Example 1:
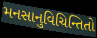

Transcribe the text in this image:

મનસાનુવિચિન્તિતો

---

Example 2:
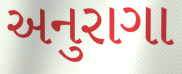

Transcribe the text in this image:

અનુરાગા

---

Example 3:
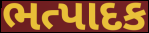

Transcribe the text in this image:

ભત્પાદક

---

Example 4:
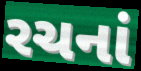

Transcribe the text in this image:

રચનાં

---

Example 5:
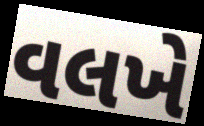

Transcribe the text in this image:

વલખે